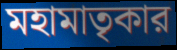
মহামাতৃকার